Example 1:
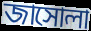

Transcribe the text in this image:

জাসোলা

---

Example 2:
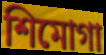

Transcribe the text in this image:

শিমোগা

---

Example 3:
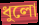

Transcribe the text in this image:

ধুলো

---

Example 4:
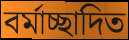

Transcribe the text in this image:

বর্মাচ্ছাদিত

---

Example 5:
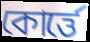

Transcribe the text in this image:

কোর্ত্তে